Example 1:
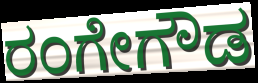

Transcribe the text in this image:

ರಂಗೇಗೌಡ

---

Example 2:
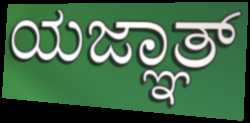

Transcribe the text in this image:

ಯಜ್ಞಾತ್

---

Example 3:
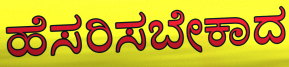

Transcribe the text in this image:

ಹೆಸರಿಸಬೇಕಾದ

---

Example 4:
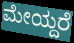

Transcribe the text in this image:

ಮೇಯ್ದರೆ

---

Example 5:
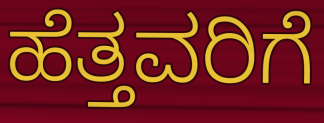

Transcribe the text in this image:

ಹೆತ್ತವರಿಗೆ